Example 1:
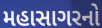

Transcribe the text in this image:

મહાસાગરનો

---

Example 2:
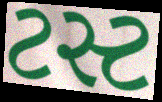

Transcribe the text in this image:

ટસ્ટ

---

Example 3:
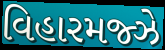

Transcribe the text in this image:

વિહારમજ્ઝે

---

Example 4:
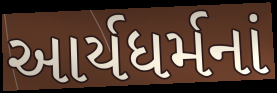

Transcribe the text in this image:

આર્યધર્મનાં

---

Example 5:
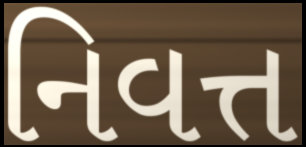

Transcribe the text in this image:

નિવત્ત